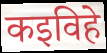
कइविहे